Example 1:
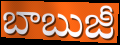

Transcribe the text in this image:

బాబుజీ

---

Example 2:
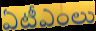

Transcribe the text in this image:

ఏటీఎంలు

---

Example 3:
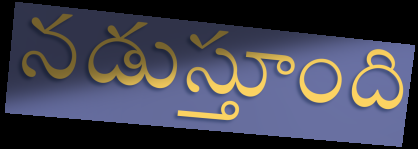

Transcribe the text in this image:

నడుస్తూంది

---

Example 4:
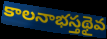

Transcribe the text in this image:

కాలనాభస్తథైవ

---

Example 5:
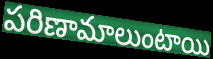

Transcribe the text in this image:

పరిణామాలుంటాయి